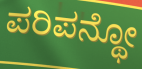
ಪರಿಪನ್ಥೋ